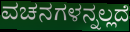
ವಚನಗಳನ್ನಲ್ಲದೆ